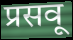
प्रसवू